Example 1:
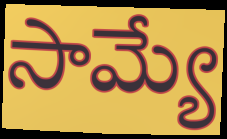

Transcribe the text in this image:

సామ్యే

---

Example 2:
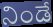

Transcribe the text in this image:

నిండే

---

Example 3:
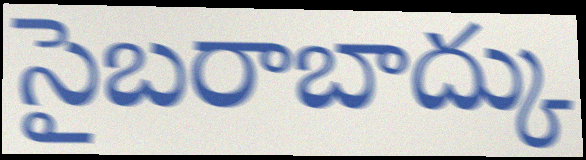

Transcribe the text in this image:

సైబరాబాద్కు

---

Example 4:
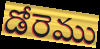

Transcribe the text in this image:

డోరెము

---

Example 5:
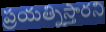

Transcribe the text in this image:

ప్రయత్నిస్తారని